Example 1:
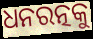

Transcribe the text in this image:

ଧନରତ୍ନକୁ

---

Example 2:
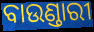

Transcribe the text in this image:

ବାଉଣ୍ଡାରୀ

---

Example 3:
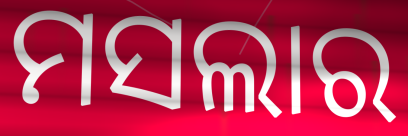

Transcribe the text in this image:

ମସଲାର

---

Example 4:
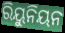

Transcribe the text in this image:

ରିୟୁନିୟନ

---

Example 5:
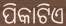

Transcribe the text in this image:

ପିକାଟିଏ